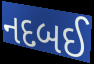
નદબઈ